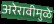
अरेरावीमुळे